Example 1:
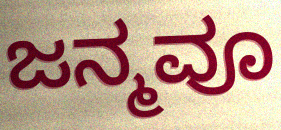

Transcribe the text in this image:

ಜನ್ಮವೂ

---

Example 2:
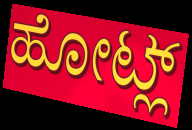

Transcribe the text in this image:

ಹೋಟ್ಲ್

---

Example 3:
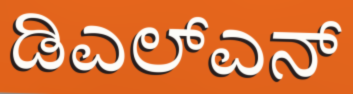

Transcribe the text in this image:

ಡಿಎಲ್ಎನ್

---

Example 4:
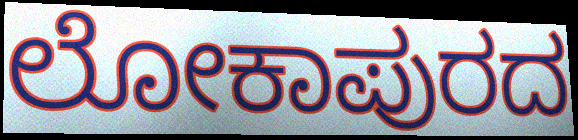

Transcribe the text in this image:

ಲೋಕಾಪುರದ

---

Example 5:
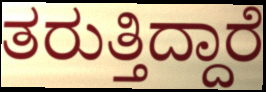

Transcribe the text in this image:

ತರುತ್ತಿದ್ದಾರೆ